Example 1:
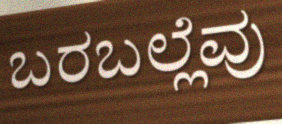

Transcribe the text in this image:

ಬರಬಲ್ಲೆವು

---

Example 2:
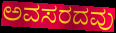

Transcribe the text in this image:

ಅವಸರದವು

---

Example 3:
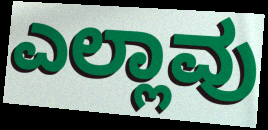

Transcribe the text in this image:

ಎಲ್ಲಾವು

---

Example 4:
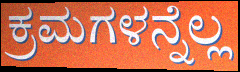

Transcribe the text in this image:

ಕ್ರಮಗಳನ್ನೆಲ್ಲ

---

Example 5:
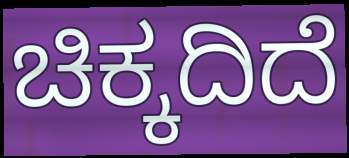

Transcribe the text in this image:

ಚಿಕ್ಕದಿದೆ